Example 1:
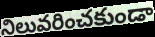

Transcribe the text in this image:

నిలువరించకుండా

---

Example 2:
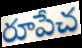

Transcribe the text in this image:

రూపేచ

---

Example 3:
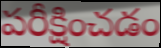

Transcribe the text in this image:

పరీక్షించడం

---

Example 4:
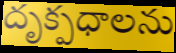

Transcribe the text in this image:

దృక్పధాలను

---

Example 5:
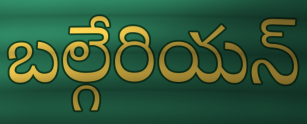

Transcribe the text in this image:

బల్గేరియన్